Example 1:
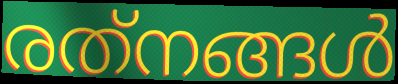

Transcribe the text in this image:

രത്‌നങ്ങൾ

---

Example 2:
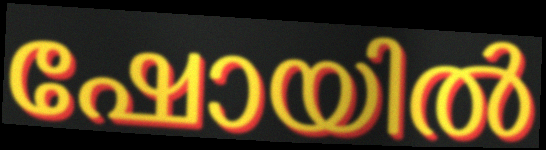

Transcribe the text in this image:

ഷോയിൽ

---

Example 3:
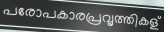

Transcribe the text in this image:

പരോപകാരപ്രവൃത്തികള്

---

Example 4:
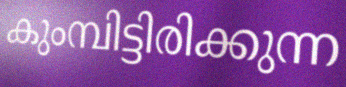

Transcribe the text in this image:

കുംമ്പിട്ടിരിക്കുന്ന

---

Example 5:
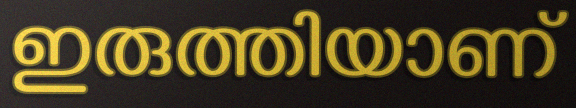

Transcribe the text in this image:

ഇരുത്തിയാണ്